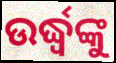
ଉର୍ଦ୍ଧ୍ୱଙ୍କୁ